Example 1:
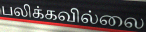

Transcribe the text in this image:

பலிக்கவில்லை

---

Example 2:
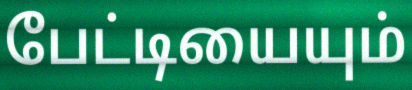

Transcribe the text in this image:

பேட்டியையும்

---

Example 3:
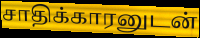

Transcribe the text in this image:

சாதிக்காரனுடன்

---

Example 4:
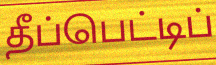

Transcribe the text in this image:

தீப்பெட்டிப்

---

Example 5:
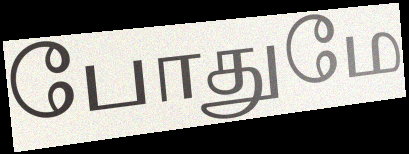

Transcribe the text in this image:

போதுமே